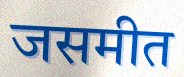
जसमीत